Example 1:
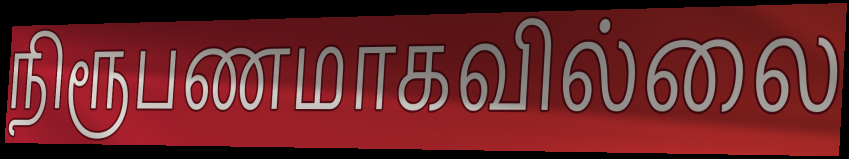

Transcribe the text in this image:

நிரூபணமாகவில்லை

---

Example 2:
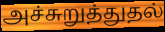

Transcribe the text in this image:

அச்சுறுத்துதல்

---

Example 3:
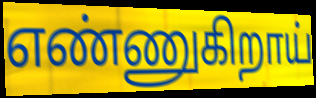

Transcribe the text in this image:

எண்ணுகிறாய்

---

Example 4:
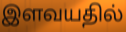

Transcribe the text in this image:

இளவயதில்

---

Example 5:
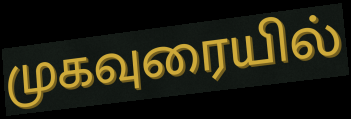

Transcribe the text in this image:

முகவுரையில்